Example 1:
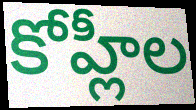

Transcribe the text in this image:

కోహ్లీల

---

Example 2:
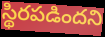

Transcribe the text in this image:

స్థిరపడిందని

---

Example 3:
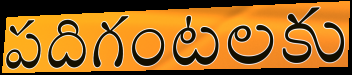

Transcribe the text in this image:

పదిగంటలకు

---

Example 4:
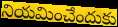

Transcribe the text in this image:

నియమించేందుకు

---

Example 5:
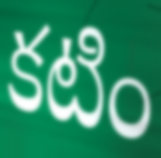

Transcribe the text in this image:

కటిం